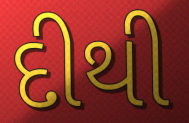
દીથી